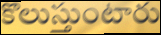
కొలుస్తుంటారు